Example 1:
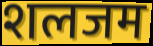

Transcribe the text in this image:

शलजम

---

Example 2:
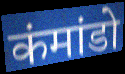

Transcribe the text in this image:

कंमांडो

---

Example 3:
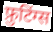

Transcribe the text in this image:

फ़ुटिंग्स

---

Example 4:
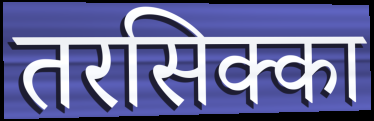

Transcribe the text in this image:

तरसिक्का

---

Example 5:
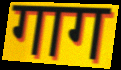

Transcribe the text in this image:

गाग